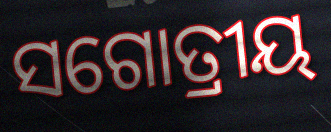
ସଗୋତ୍ରୀୟ